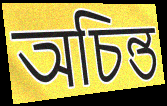
অচিন্ত